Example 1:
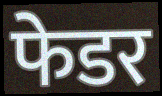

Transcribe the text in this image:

फेडर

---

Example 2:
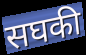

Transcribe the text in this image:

सघकी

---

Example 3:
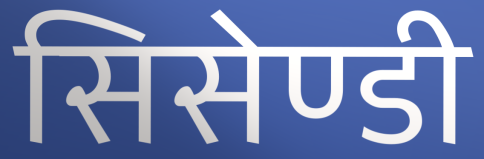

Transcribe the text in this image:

सिसेण्डी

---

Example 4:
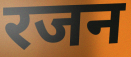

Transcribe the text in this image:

रजन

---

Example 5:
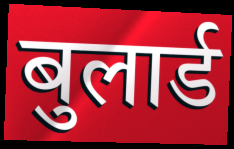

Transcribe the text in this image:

बुलार्ड